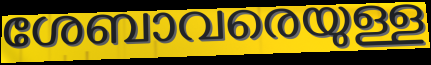
ശേബാവരെയുള്ള